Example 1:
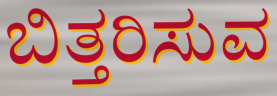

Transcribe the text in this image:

ಬಿತ್ತರಿಸುವ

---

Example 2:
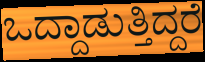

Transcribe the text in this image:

ಒದ್ದಾಡುತ್ತಿದ್ದರೆ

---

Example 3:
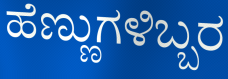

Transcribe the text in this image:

ಹೆಣ್ಣುಗಳಿಬ್ಬರ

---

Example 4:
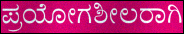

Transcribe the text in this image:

ಪ್ರಯೋಗಶೀಲರಾಗಿ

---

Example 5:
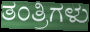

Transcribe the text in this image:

ತಂತ್ರಿಗಳು